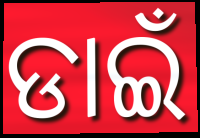
ଡାଇଁ